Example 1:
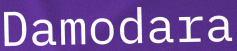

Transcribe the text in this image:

Damodara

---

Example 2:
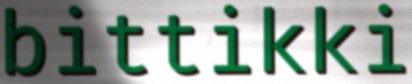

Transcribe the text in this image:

bittikki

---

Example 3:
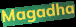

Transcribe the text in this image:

Magadha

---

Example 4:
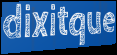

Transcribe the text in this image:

dixitque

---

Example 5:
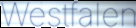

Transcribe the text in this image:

Westfalen